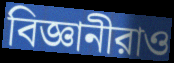
বিজ্ঞানীরাও